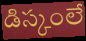
డిస్కంలే